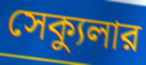
সেক্যুলার